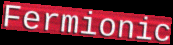
Fermionic